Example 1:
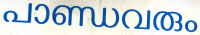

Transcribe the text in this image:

പാണ്ഡവരും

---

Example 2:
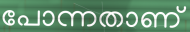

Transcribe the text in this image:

പോന്നതാണ്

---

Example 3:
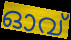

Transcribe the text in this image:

ഓവ്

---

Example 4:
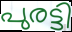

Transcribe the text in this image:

പുരട്ടി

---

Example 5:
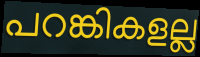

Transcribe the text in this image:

പറങ്കികളല്ല